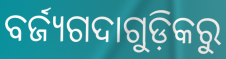
ବର୍ଜ୍ୟଗଦାଗୁଡ଼ିକରୁ